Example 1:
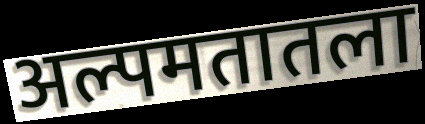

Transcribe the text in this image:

अल्पमतातला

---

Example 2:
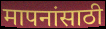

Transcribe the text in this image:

मापनांसाठी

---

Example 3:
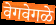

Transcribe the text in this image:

वेगवेगळे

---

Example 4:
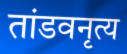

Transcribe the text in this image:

तांडवनृत्य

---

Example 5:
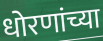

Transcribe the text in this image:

धोरणांच्या